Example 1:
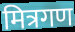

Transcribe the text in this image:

मित्रगण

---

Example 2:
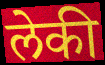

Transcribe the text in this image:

लेकी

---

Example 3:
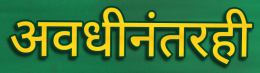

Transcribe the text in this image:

अवधीनंतरही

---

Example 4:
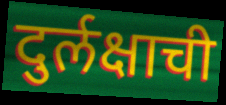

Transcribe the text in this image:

दुर्लक्षाची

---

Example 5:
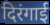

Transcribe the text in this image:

दिरंगाई